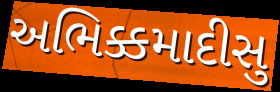
અભિક્કમાદીસુ